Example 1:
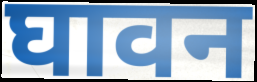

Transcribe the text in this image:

घावन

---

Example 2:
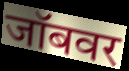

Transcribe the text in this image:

जॉबवर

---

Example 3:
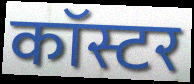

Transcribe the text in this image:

कॉस्टर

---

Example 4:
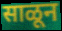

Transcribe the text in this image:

साळून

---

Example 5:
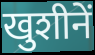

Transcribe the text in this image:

खुशीनें